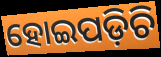
ହୋଇପଡ଼ିଚି